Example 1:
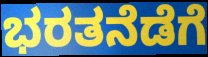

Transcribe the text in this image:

ಭರತನೆಡೆಗೆ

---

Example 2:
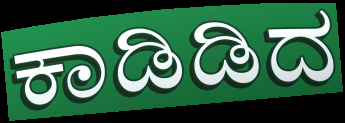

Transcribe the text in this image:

ಕಾಡಿಡಿದ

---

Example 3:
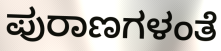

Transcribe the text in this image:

ಪುರಾಣಗಳಂತೆ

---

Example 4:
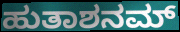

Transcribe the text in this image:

ಹುತಾಶನಮ್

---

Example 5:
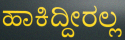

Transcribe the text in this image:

ಹಾಕಿದ್ದೀರಲ್ಲ